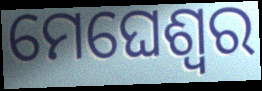
ମେଘେଶ୍ୱର